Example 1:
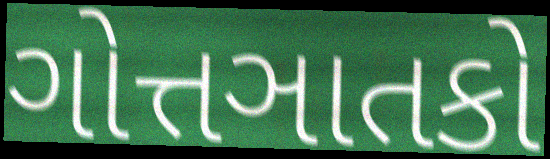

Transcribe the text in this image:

ગોત્તઞાતકો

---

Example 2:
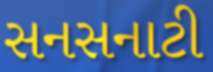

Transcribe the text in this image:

સનસનાટી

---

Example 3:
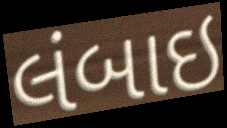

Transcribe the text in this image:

લંબાઇ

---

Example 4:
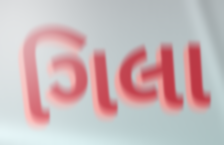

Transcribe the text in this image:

ગિલા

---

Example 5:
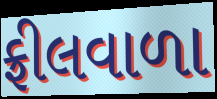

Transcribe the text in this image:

ફ્રીલવાળા